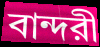
বান্দরী